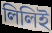
লিলিই